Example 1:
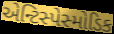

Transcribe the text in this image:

એન્ટિસ્પેસ્મોડિક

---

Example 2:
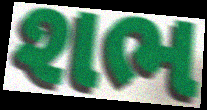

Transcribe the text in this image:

શભ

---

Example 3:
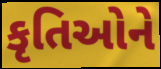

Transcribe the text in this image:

કૃતિઓને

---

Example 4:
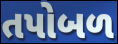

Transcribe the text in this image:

તપોબળ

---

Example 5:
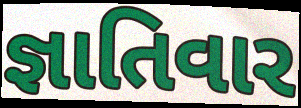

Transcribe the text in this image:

જ્ઞાતિવાર